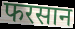
फरसान